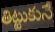
తిట్టుకునే